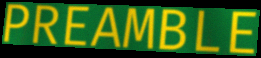
PREAMBLE